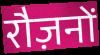
रौज़नों